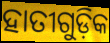
ହାତୀଗୁଡ଼ିକ